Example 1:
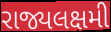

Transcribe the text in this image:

રાજ્યલક્ષમી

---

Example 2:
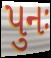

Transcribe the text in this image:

પુનઃ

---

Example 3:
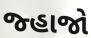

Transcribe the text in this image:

જ્હાજો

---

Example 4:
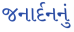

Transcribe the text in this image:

જનાર્દનનું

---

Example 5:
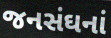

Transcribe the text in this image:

જનસંઘનાં